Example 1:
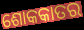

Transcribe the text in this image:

ଶୋକକାତର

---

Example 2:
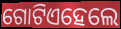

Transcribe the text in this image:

ଗୋଟିଏହେଲେ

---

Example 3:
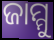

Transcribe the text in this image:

ଜାମ୍ମୁ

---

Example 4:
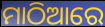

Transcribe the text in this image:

ମାଠିଆରେ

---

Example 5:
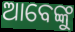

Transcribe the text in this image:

ଆବେଙ୍କୁ